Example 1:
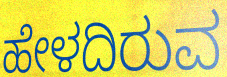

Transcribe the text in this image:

ಹೇಳದಿರುವ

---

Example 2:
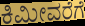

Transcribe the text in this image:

ಕಿಮೀವರೆಗೆ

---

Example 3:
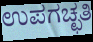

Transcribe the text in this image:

ಉಪಗಚ್ಛತಿ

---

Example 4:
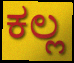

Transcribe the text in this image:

ಕಲ್ಲ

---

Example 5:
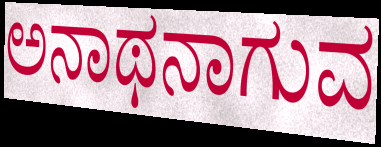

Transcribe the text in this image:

ಅನಾಥನಾಗುವ